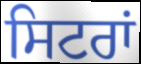
ਸਿਟਰਾਂ